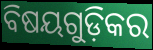
ବିଷୟଗୁଡ଼ିକର